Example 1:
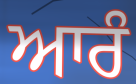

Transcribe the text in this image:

ਆਰੰ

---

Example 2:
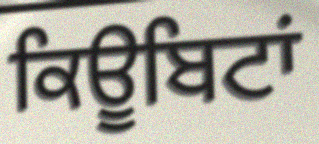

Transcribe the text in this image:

ਕਿਊਬਿਟਾਂ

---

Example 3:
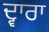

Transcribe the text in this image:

ਦ੍ਵਾਰਾ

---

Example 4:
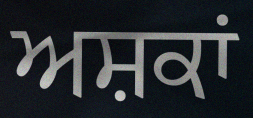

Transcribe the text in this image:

ਅਸ਼ਕਾਂ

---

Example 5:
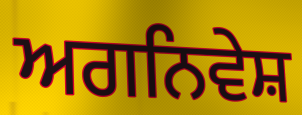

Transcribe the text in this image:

ਅਗਨਿਵੇਸ਼